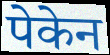
पेकेन